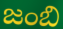
జంబి